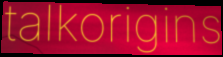
talkorigins